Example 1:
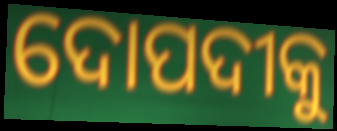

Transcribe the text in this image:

ଦୋପଦୀକୁ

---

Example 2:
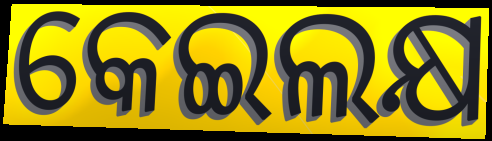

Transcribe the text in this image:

କେଇଲକ୍ଷ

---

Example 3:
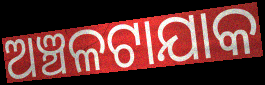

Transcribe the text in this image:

ଅଞ୍ଚଳଟାଯାକ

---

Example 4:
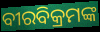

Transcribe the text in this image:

ବୀରବିକ୍ରମଙ୍କ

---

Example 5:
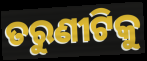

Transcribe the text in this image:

ତରୁଣୀଟିକୁ